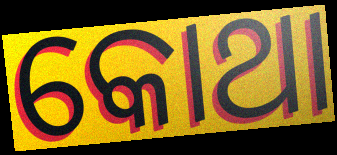
କୋଥା